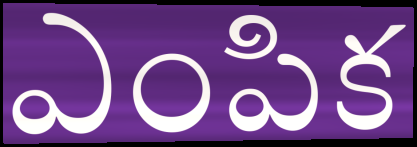
ఎంపిక